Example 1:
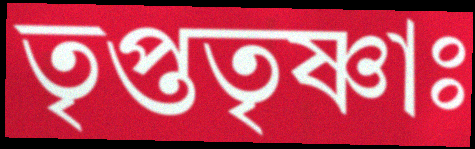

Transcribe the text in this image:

তৃপ্ততৃষ্ণাঃ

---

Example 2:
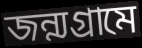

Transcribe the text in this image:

জন্মগ্রামে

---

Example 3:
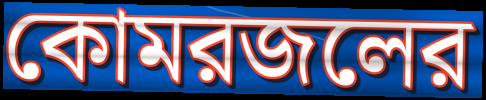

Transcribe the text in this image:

কোমরজলের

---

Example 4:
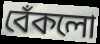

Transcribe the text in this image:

বেঁকলো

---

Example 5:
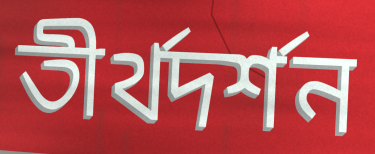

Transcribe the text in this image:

তীর্থদর্শন